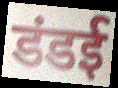
डंडई